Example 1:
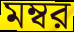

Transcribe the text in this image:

মম্বর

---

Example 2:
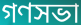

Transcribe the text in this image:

গণসভা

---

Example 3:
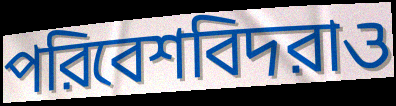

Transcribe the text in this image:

পরিবেশবিদরাও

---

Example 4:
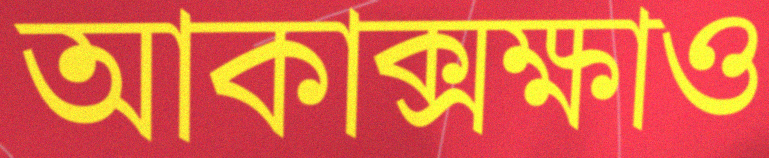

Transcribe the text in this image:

আকাক্সক্ষাও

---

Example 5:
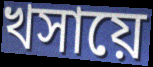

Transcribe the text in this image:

খসায়ে